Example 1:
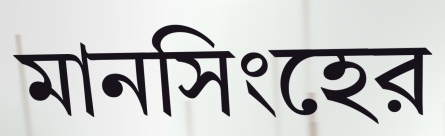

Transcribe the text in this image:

মানসিংহের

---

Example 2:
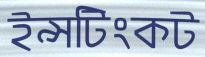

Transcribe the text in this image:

ইন্সটিংকট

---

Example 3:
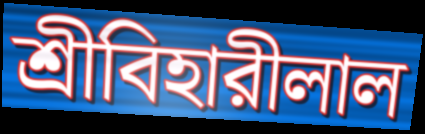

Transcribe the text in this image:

শ্রীবিহারীলাল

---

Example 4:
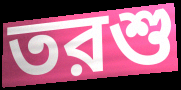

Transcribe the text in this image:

তরশু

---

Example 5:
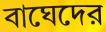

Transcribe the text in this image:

বাঘেদের